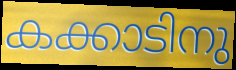
കക്കാടിനു